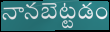
నానబెట్టడం